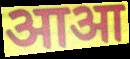
आआ